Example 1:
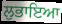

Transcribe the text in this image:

ਲੁਭਾਇਆ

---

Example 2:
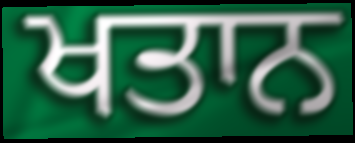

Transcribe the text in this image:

ਖਤਾਨ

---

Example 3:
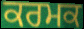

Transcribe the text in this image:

ਕਰਮਕ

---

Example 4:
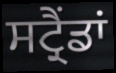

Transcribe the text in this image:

ਸਟ੍ਰੈਂਡਾਂ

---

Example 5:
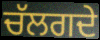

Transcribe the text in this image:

ਚੱਲਗਦੇ